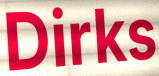
Dirks